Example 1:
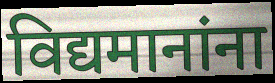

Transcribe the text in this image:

विद्यमानांना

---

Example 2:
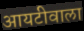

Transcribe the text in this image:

आयटीवाला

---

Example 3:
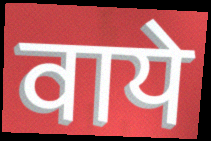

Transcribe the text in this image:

वाये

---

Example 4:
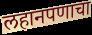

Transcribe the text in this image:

लहानपणाचा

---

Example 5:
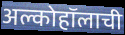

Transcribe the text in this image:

अल्कोहॉलाची